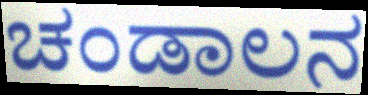
ಚಂಡಾಲನ